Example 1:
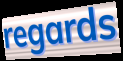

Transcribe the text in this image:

regards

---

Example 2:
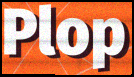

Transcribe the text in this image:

Plop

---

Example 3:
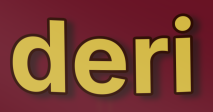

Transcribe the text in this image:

deri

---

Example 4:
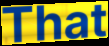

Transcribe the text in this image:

That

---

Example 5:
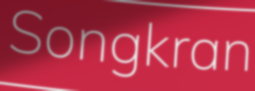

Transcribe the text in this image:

Songkran